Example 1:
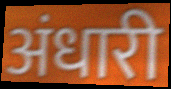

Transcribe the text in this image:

अंधारी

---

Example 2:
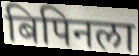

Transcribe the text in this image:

बिपिनला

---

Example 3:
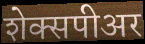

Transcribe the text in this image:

शेक्सपीअर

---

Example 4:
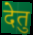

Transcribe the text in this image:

देतु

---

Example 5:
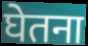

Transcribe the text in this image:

घेतना